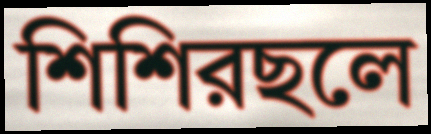
শিশিরছলে